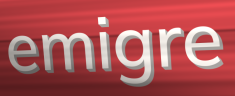
emigre